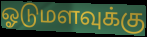
ஓடுமளவுக்கு